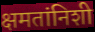
क्षमतांनिशी